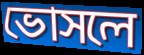
ভোসলে